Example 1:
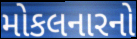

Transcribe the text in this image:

મોકલનારનો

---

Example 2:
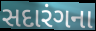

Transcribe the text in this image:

સદારંગના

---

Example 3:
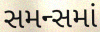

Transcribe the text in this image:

સમન્સમાં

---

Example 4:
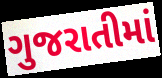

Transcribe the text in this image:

ગુજરાતીમાં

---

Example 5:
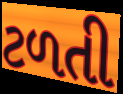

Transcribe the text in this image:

ટળતી